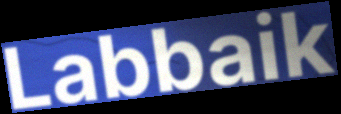
Labbaik